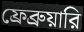
ফ্রেব্রুয়ারি